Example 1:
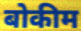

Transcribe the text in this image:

बोकीम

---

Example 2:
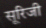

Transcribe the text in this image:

सूरिजी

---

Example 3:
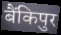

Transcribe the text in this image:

बैंकिपुर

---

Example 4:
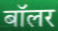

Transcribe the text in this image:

बॉलर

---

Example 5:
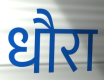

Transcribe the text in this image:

धौरा